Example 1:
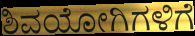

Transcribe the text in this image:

ಶಿವಯೋಗಿಗಳಿಗೆ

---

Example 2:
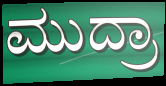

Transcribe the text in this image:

ಮುದ್ರಾ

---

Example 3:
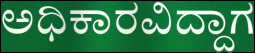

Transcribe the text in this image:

ಅಧಿಕಾರವಿದ್ದಾಗ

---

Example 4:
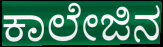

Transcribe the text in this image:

ಕಾಲೇಜಿನ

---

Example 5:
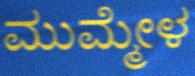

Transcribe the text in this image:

ಮುಮ್ಮೇಳ